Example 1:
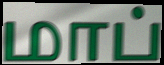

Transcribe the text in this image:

மாப்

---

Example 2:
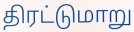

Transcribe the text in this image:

திரட்டுமாறு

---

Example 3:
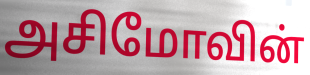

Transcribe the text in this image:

அசிமோவின்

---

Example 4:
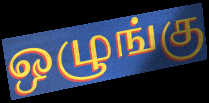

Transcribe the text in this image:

ஒழுங்கு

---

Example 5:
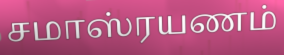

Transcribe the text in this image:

சமாஸ்ரயணம்